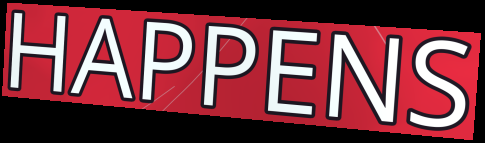
HAPPENS